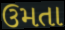
ઉમતા